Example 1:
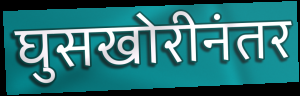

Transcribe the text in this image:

घुसखोरीनंतर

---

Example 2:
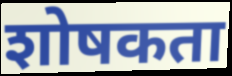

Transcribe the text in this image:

शोषकता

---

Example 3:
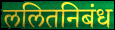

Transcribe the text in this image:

ललितनिबंध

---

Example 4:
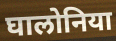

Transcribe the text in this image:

घालोनिया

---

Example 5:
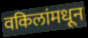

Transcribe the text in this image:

वकिलांमधून